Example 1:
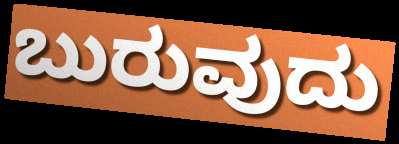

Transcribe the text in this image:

ಬುರುವುದು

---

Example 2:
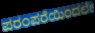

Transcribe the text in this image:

ಪರಂಪರೆಯಿಂದಲೇ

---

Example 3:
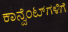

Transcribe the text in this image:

ಕಾನ್ವೆಂಟ್‌ಗಳಿಗೆ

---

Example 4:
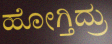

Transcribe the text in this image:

ಹೋಗ್ತಿದ್ರು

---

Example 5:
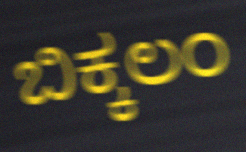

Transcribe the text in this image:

ಬಿಕ್ಕಲಂ